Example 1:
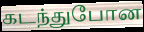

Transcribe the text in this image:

கடந்துபோன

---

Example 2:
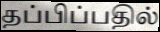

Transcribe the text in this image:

தப்பிப்பதில்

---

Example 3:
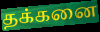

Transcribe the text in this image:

தக்கனை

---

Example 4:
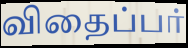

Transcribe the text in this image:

விதைப்பர்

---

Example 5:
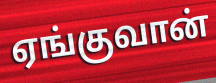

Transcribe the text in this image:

ஏங்குவான்